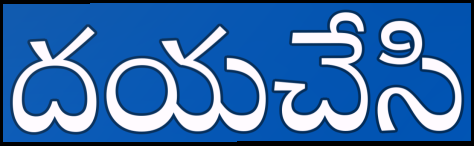
దయచేసి